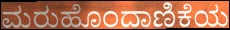
ಮರುಹೊಂದಾಣಿಕೆಯ